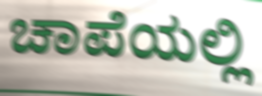
ಚಾಪೆಯಲ್ಲಿ